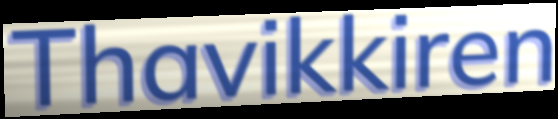
Thavikkiren